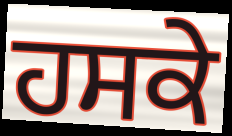
ਹਸਕੇ